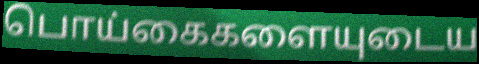
பொய்கைகளையுடைய